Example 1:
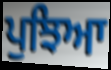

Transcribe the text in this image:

ਪੁਝਿਆ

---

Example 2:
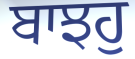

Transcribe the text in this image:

ਬਾਝਹੁ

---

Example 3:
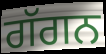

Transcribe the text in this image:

ਗੱਗਨ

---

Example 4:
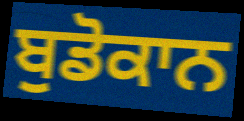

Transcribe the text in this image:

ਬੁਡੋਕਾਨ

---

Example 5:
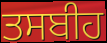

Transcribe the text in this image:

ਤਸਬੀਹ